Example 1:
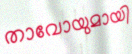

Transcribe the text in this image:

താവോയുമായി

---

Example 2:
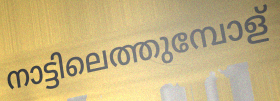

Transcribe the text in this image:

നാട്ടിലെത്തുമ്പോള്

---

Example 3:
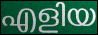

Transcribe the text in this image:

എളിയ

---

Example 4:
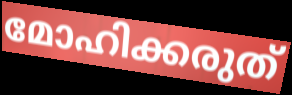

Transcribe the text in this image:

മോഹിക്കരുത്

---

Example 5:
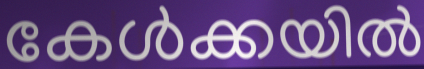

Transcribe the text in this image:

കേൾക്കയിൽ